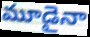
మూడైనా